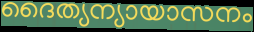
ദൈത്യന്യായാസനം